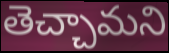
తెచ్చామని